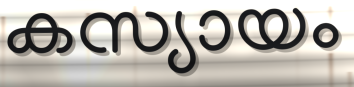
കസ്യായം